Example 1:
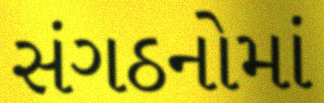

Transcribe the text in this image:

સંગઠનોમાં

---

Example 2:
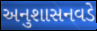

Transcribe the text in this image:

અનુશાસનવડે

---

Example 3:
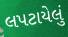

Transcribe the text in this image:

લપટાયેલું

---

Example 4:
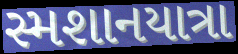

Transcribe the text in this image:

સ્મશાનયાત્રા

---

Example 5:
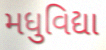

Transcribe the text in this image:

મધુવિદ્યા